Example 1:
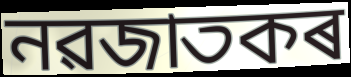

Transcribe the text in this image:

নৱজাতকৰ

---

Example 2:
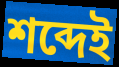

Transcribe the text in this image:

শব্দেই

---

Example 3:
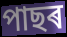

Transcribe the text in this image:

পাছৰ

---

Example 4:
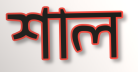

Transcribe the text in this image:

শাল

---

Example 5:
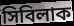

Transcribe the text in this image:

সিবিলাক